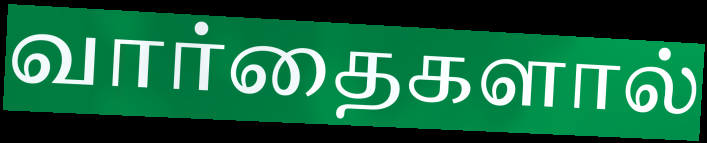
வார்தைகளால்